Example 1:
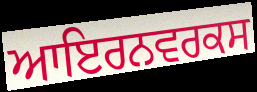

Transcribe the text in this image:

ਆਇਰਨਵਰਕਸ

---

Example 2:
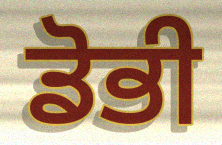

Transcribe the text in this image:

ਡੋਭੀ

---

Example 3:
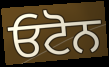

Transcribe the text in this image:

ਓਟੋਨ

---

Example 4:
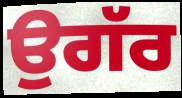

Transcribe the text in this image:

ਉਗੱਰ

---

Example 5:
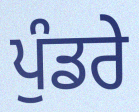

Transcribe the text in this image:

ਪੁੰਡਰੇ